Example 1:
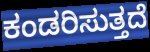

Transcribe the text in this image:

ಕಂಡರಿಸುತ್ತದೆ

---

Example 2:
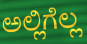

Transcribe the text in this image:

ಅಲ್ಲಿಗೆಲ್ಲ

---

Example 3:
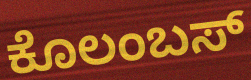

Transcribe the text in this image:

ಕೊಲಂಬಸ್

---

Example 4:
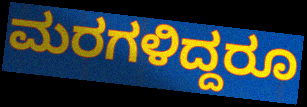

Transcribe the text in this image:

ಮರಗಳಿದ್ದರೂ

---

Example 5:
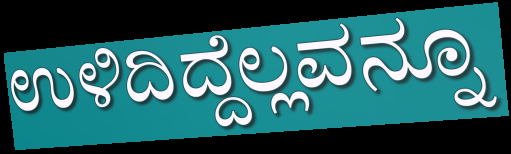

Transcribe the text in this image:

ಉಳಿದಿದ್ದೆಲ್ಲವನ್ನೂ